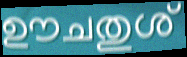
ഊചതുശ്